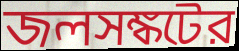
জলসঙ্কটের